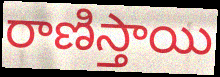
రాణిస్తాయి